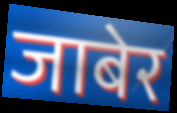
जाबेर